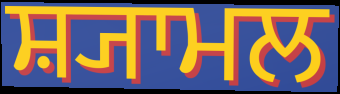
ਸ਼੍ਯਾਮਲ